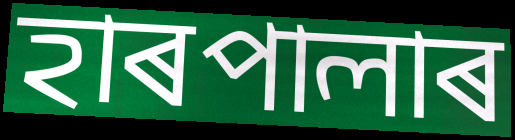
হাৰপালাৰ